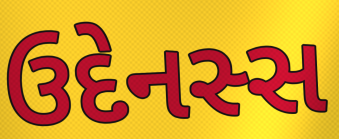
ઉદેનસ્સ